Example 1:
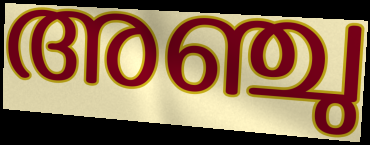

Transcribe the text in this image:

അഞ്ചു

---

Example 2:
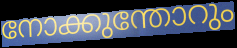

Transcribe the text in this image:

നോക്കുന്തോറും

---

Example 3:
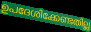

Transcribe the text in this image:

ഉപദേശിക്കേണ്ടതില്ല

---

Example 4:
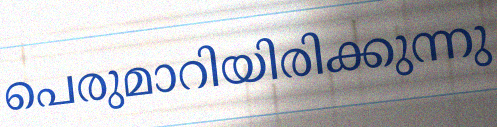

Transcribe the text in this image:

പെരുമാറിയിരിക്കുന്നു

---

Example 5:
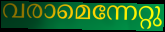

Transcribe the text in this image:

വരാമെന്നേറ്റു